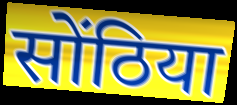
सोंठिया